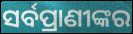
ସର୍ବପ୍ରାଣୀଙ୍କର